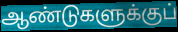
ஆண்டுகளுக்குப்